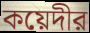
কয়েদীর